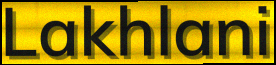
Lakhlani